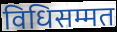
विधिसम्मत